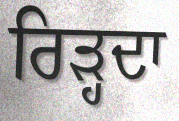
ਰਿੜ੍ਹਦਾ